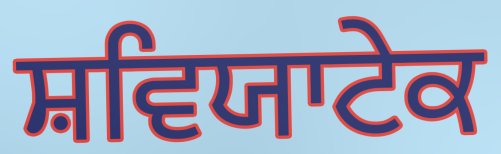
ਸ਼ਵਿਯਾਟੇਕ